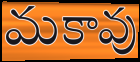
మకావు